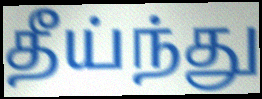
தீய்ந்து